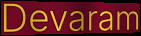
Devaram